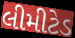
લીમીટેડ